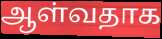
ஆள்வதாக